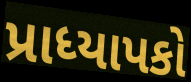
પ્રાધ્યાપકો